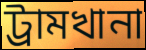
ট্রামখানা